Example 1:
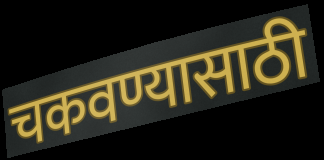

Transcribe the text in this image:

चकवण्यासाठी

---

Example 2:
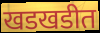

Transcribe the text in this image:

खडखडीत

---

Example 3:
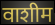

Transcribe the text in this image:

वाशीम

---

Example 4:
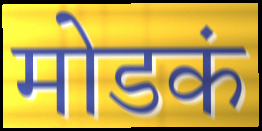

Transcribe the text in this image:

मोडकं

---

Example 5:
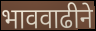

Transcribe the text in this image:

भाववाढीने